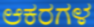
ಆಕರಗಳ